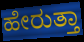
ಹೇರುತ್ತಾ